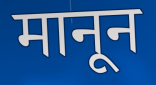
मानून